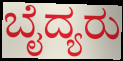
ಬೈದ್ಯರು